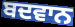
ਬਦਵਾਨ